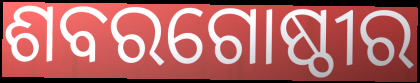
ଶବରଗୋଷ୍ଠୀର